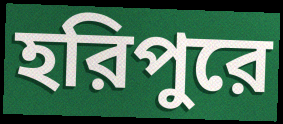
হরিপুরে